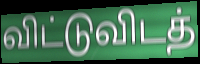
விட்டுவிடத்